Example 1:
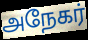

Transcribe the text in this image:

அநேகர்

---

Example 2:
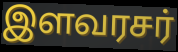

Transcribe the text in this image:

இளவரசர்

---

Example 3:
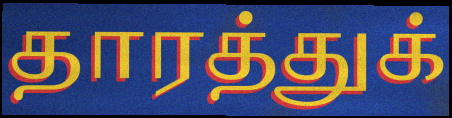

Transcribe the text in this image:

தாரத்துக்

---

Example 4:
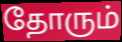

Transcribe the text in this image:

தோரும்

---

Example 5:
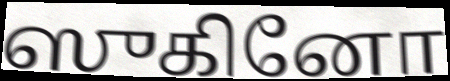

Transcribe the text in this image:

ஸுகினோ